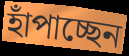
হাঁপাচ্ছেন